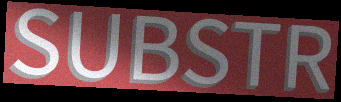
SUBSTR